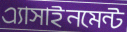
এ্যাসাইনমেন্ট